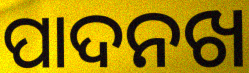
ପାଦନଖ